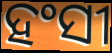
ହଂସୀ